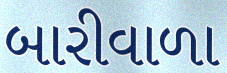
બારીવાળા